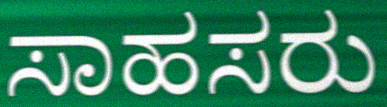
ಸಾಹಸರು